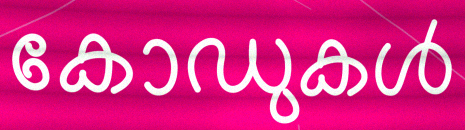
കോഡുകൾ